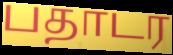
பதாடர